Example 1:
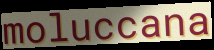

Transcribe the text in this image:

moluccana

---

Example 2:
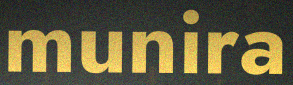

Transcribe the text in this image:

munira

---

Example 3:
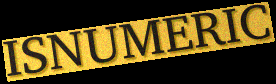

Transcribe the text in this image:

ISNUMERIC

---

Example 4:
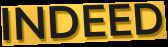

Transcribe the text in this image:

INDEED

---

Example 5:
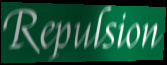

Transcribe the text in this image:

Repulsion